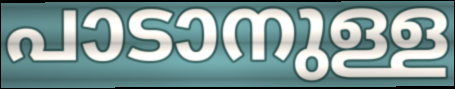
പാടാനുള്ള